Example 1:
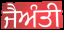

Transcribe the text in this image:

ਜੈਅੰਤੀ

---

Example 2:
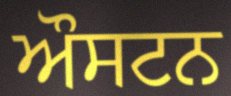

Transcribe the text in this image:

ਔਸਟਨ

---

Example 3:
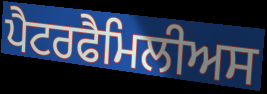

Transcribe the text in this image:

ਪੈਟਰਫੈਮਿਲੀਅਸ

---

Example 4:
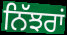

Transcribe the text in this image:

ਨਿੱਝਰਾਂ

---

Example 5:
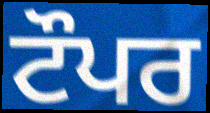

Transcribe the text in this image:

ਟੌਪਰ